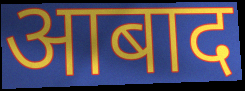
आबाद